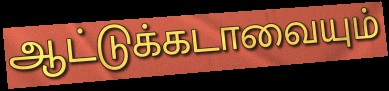
ஆட்டுக்கடாவையும்